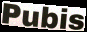
Pubis